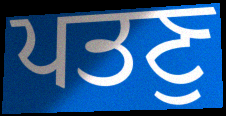
ਪਤਣੁ